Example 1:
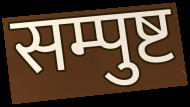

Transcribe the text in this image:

सम्पुष्ट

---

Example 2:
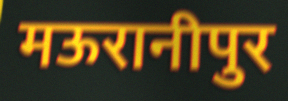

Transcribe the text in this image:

मऊरानीपुर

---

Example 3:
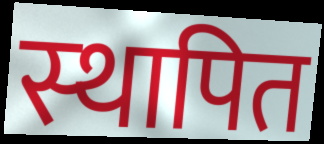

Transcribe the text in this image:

स्‍थापित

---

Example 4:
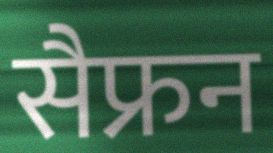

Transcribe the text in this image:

सैफ्रन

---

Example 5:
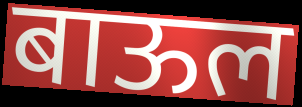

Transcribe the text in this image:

बाऊल